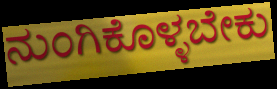
ನುಂಗಿಕೊಳ್ಳಬೇಕು